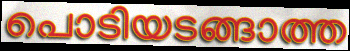
പൊടിയടങ്ങാത്ത